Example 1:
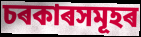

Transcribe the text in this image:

চৰকাৰসমূহৰ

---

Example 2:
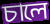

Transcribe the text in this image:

চালে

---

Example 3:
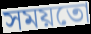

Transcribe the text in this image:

সময়তো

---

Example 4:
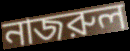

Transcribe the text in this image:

নাজৰুল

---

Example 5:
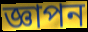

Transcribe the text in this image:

জ্ঞাপন